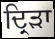
ਦ੍ਰਿੜਾ